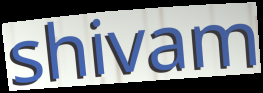
shivam